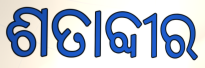
ଶତାବ୍ଦୀର